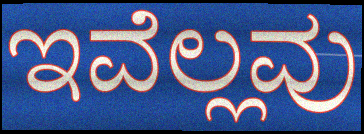
ಇವೆಲ್ಲವು